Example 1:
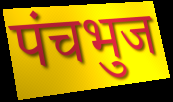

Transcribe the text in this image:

पंचभुज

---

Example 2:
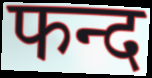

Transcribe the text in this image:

फन्द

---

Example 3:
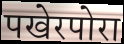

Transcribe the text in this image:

पखेरपोरा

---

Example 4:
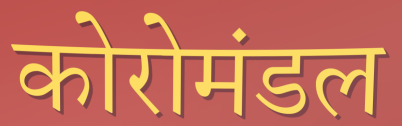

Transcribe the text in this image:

कोरोमंडल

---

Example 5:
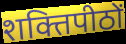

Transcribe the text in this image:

शक्तिपीठों